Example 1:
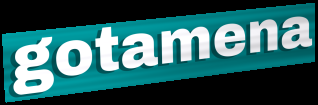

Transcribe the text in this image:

gotamena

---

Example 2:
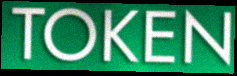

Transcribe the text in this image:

TOKEN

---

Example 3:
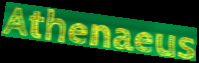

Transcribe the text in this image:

Athenaeus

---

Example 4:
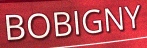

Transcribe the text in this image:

BOBIGNY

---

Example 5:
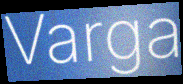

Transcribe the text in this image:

Varga